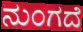
ನುಂಗದೆ